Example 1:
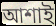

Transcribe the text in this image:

আশাই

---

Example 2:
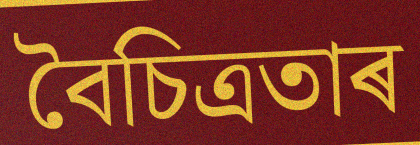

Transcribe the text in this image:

বৈচিত্ৰতাৰ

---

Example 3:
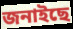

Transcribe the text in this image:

জনাইছে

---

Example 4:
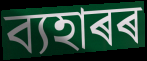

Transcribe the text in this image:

ব্যহাৰৰ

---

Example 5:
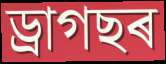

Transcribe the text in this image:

ড্ৰাগছৰ